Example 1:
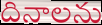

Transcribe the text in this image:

దినాలను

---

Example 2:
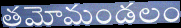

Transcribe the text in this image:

తమోమండలం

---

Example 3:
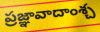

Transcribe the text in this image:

ప్రజ్ఞావాదాంశ్చ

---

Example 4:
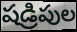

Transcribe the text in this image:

షడ్రిపుల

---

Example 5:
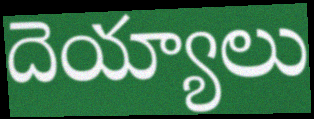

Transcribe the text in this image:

దెయ్యాలు